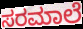
ಸರಮಾಲೆ